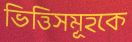
ভিত্তিসমূহকে